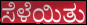
ಸೆಳೆಯಿತು